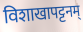
विशाखापट्टनम्